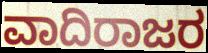
ವಾದಿರಾಜರ